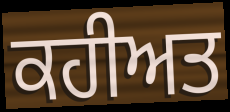
ਕਹੀਅਤ